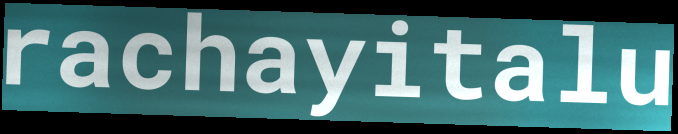
rachayitalu